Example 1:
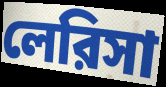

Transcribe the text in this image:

লেরিসা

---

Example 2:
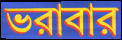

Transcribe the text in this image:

ভরাবার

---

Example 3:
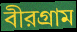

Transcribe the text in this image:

বীরগ্রাম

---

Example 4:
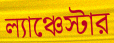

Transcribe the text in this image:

ল্যাঞ্চেস্টার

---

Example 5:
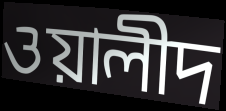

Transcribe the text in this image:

ওয়ালীদ